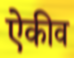
ऐकीव